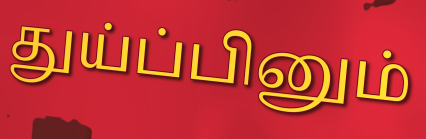
துய்ப்பினும்